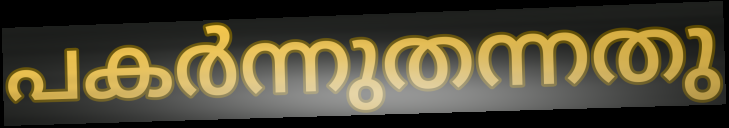
പകർന്നുതന്നതു